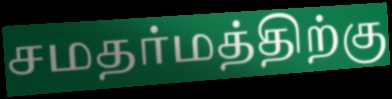
சமதர்மத்திற்கு